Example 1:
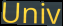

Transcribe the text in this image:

Univ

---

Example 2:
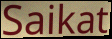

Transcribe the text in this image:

Saikat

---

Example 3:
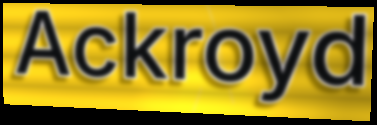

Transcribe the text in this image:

Ackroyd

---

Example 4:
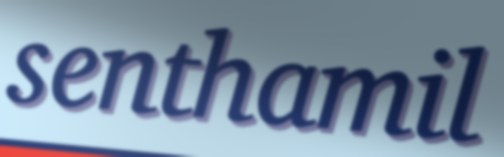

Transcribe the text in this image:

senthamil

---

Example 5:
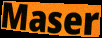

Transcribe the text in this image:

Maser